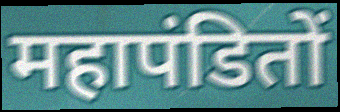
महापंडितों